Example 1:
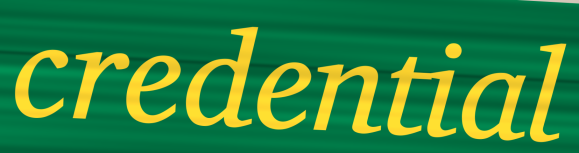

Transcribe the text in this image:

credential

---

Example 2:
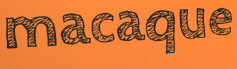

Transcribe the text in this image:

macaque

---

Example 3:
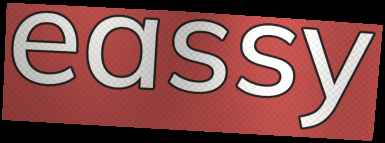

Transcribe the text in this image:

eassy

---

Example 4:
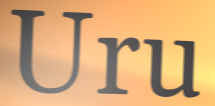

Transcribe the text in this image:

Uru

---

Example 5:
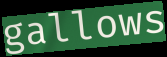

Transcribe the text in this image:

gallows